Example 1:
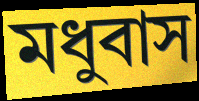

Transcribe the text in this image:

মধুবাস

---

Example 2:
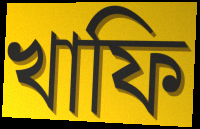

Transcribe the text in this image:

খাফি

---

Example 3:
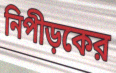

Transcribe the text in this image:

নিপীড়কের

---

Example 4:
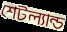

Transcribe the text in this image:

শেটল্যান্ড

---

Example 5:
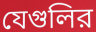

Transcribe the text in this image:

যেগুলির